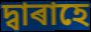
দ্বাৰাহে